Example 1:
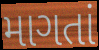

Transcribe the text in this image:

માગતાં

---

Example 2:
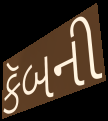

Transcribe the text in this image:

કૅબની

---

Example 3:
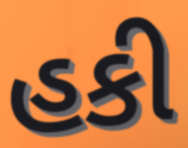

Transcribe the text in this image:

હકી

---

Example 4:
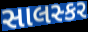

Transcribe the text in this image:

સાલસ્કર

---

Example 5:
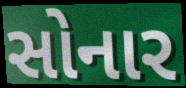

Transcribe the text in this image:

સોનાર